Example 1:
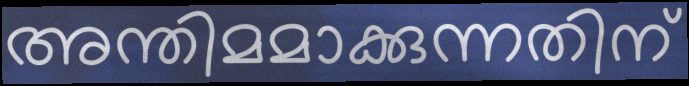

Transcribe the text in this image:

അന്തിമമാക്കുന്നതിന്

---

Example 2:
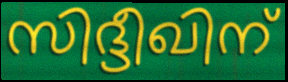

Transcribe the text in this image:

സിദ്ദീഖിന്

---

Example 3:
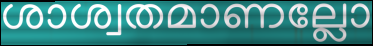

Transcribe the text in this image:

ശാശ്വതമാണല്ലോ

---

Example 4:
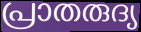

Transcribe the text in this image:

പ്രാതരുദ്യ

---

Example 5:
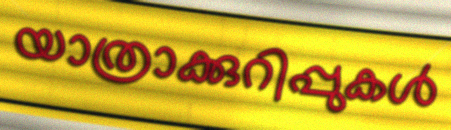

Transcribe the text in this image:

യാത്രാക്കുറിപ്പുകൾ